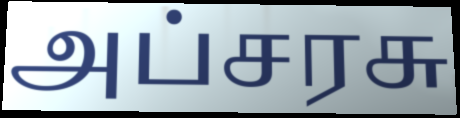
அப்சரசு